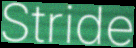
Stride